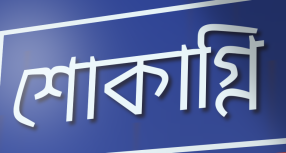
শোকাগ্নি